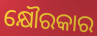
କ୍ଷୌରକାର